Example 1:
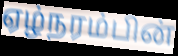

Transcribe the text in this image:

ஏழ்நரம்பின்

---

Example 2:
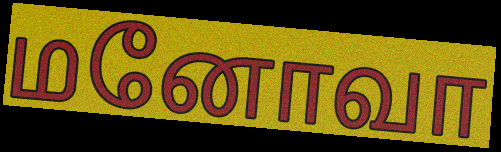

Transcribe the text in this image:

மனோவா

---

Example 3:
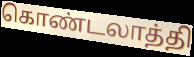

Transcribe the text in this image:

கொண்டலாத்தி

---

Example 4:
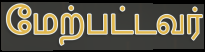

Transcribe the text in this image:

மேற்பட்டவர்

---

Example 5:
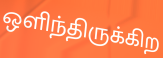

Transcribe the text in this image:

ஒளிந்திருக்கிற